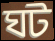
ঘট